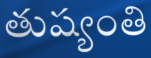
తుష్యంతి